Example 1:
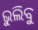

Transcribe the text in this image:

ଭୁଲିବୁ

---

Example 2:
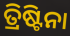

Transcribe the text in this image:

ତ୍ରିଷ୍ଟିନା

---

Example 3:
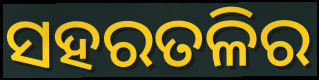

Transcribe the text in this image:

ସହରତଳିର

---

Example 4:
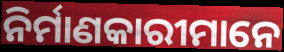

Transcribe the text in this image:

ନିର୍ମାଣକାରୀମାନେ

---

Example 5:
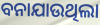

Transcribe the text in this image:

ବନାଯାଉଥିଲା